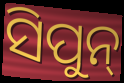
ସିପୁନ୍